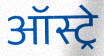
ऑस्ट्रे